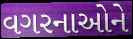
વગરનાઓને